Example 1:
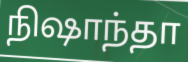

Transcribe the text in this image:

நிஷாந்தா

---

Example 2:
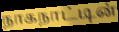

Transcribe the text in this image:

நாகநாட்டின்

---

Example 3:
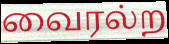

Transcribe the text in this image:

வைரல்ற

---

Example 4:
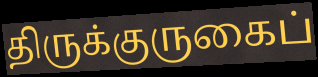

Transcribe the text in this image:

திருக்குருகைப்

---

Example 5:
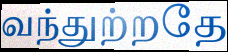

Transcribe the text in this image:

வந்துற்றதே